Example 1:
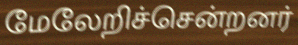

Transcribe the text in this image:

மேலேறிச்சென்றனர்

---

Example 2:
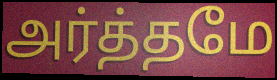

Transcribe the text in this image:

அர்த்தமே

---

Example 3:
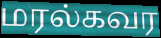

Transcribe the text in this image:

மரல்கவர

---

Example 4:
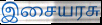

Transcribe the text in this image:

இசையரசு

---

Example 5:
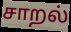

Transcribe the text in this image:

சாறல்